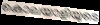
കൊലയാളിയുടെ